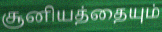
சூனியத்தையும்